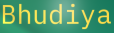
Bhudiya